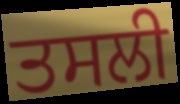
ਤਸਲੀ